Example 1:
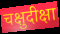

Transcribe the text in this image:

चक्षुदीक्षा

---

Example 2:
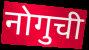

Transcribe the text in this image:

नोगुची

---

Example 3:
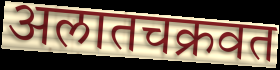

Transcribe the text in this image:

अलातचक्रवत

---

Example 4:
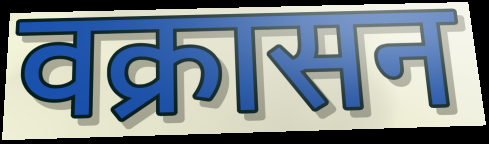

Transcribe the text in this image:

वक्रासन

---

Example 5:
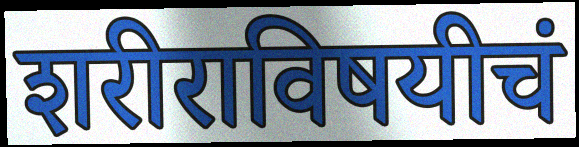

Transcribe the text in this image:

शरीराविषयीचं